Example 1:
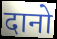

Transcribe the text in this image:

दानो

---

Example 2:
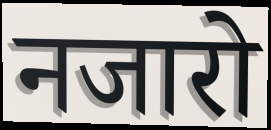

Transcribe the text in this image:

नजारो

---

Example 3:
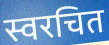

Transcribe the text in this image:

स्वरचित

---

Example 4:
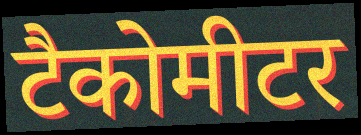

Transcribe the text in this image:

टैकोमीटर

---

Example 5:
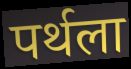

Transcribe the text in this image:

पर्थला